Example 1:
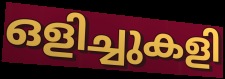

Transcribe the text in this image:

ഒളിച്ചുകളി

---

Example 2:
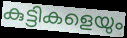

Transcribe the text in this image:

കുട്ടികളെയും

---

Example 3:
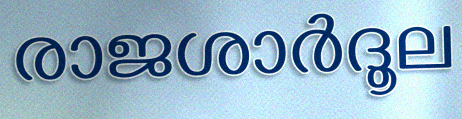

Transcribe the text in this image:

രാജശാർദൂല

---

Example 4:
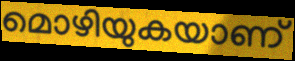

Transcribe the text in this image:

മൊഴിയുകയാണ്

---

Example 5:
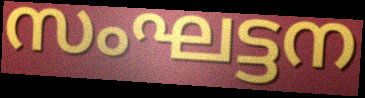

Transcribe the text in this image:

സംഘട്ടന